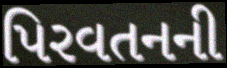
પિરવતનની